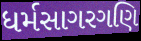
ધર્મસાગરગણિ